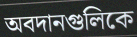
অবদানগুলিকে